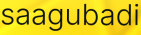
saagubadi